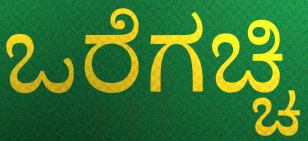
ಒರೆಗಚ್ಚಿ